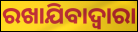
ରଖାଯିବାଦ୍ଵାରା